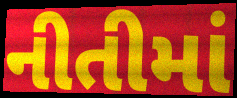
નીતીમાં